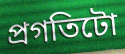
প্ৰগতিটো